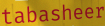
tabasheer